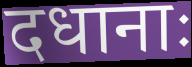
दधानाः